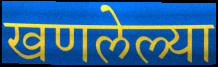
खणलेल्या